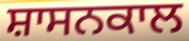
ਸ਼ਾਸਨਕਾਲ